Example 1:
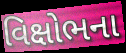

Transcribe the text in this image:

વિક્ષોભના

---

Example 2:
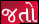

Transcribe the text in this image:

જતો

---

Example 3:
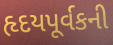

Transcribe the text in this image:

હૃદયપૂર્વકની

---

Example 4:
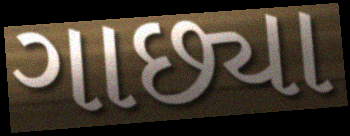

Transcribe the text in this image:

ગાછ્યા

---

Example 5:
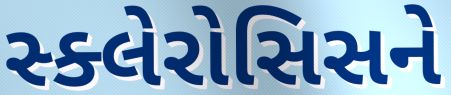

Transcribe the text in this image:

સ્ક્લેરોસિસને